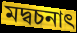
মদ্বচনাৎ